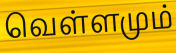
வெள்ளமும்